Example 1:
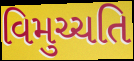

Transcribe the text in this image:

વિમુચ્ચતિ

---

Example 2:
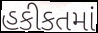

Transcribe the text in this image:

હકીકતમાં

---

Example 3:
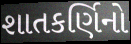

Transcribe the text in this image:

શાતકર્ણિનો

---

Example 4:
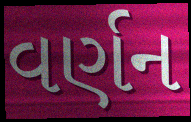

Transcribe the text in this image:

વર્ણન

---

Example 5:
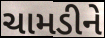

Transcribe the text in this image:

ચામડીને